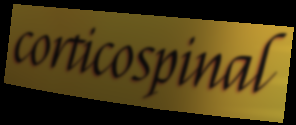
corticospinal